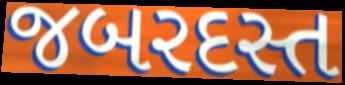
જબરદસ્ત